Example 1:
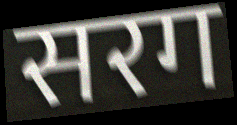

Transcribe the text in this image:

सरग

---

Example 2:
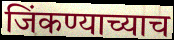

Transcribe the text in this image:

जिंकण्याच्याच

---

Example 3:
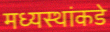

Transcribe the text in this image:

मध्यस्थांकडे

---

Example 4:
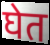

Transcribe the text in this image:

घेत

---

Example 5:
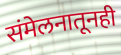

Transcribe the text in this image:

संमेलनातूनही